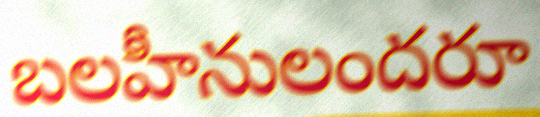
బలహీనులందరూ